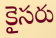
కైసరు